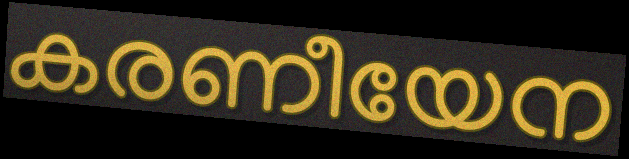
കരണീയേന